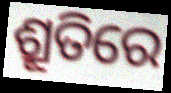
ଶ୍ରୂତିରେ